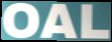
OAL